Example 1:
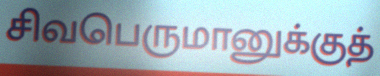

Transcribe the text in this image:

சிவபெருமானுக்குத்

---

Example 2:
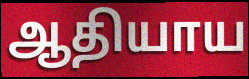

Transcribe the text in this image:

ஆதியாய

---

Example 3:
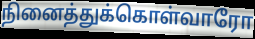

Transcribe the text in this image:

நினைத்துக்கொள்வாரோ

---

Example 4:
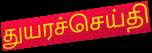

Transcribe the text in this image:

துயரச்செய்தி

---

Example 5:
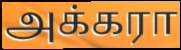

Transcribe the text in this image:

அக்கரா